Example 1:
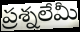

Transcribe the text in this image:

ప్రశ్నలేమీ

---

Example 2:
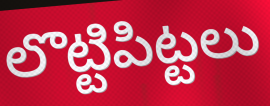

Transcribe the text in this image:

లొట్టిపిట్టలు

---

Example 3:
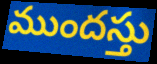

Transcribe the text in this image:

ముందస్తు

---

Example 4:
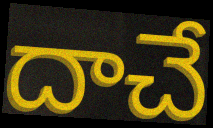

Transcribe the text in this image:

దాచే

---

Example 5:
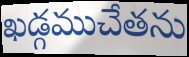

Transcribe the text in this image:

ఖడ్గముచేతను